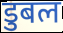
डुबल